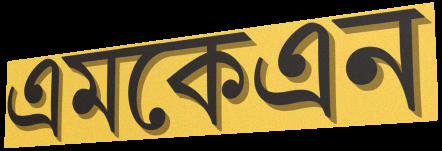
এমকেএন